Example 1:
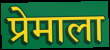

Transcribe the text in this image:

प्रेमाला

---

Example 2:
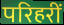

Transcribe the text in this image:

परिहरीं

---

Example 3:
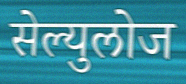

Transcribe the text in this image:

सेल्युलोज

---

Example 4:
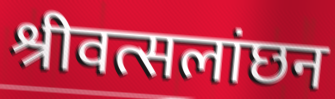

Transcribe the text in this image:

श्रीवत्सलांछन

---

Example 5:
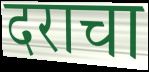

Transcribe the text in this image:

दराचा